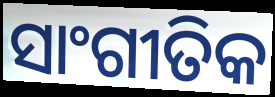
ସାଂଗୀତିକ